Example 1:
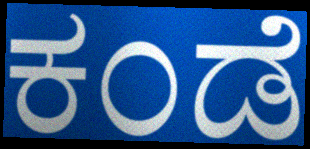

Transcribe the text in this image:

ಕಂಡೆ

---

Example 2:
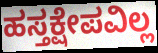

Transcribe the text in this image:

ಹಸ್ತಕ್ಷೇಪವಿಲ್ಲ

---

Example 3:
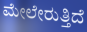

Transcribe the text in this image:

ಮೇಲೇರುತ್ತಿದೆ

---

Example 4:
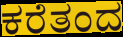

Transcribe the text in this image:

ಕರೆತಂದ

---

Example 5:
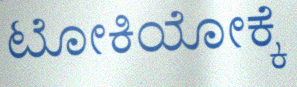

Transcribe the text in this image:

ಟೋಕಿಯೋಕ್ಕೆ